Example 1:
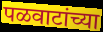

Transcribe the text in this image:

पळवाटांच्या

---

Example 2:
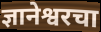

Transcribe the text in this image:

ज्ञानेश्वरचा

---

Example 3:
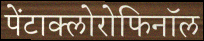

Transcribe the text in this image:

पेंटाक्लोरोफिनॉल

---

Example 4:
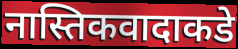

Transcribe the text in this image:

नास्तिकवादाकडे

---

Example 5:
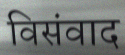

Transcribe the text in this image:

विसंवाद